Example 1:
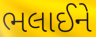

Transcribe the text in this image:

ભલાઈને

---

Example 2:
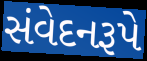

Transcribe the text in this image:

સંવેદનરૂપે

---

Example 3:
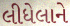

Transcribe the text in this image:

લીધેલાને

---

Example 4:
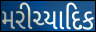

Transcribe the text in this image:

મરીચ્યાદિક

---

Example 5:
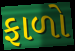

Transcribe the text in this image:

ફાળો